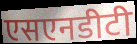
एसएनडीटी